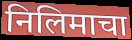
निलिमाचा